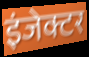
इंजेक्टर